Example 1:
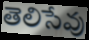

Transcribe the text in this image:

తెలిసేవు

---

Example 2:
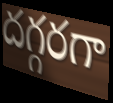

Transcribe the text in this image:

దగ్గరగా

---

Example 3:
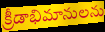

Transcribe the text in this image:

క్రీడాభిమానులను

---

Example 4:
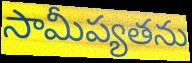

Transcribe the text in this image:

సామీప్యతను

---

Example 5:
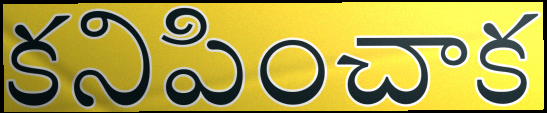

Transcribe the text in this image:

కనిపించాక